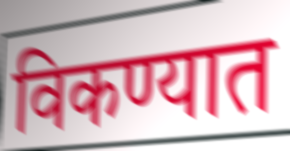
विकण्यात